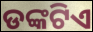
ଡଙ୍କଟିଏ